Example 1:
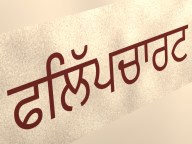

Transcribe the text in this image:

ਫਲਿੱਪਚਾਰਟ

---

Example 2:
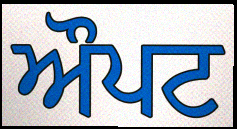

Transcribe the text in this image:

ਔਪਟ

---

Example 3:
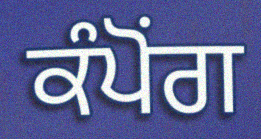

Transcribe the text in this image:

ਕੰਪੋਂਗ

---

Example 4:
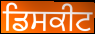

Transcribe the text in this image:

ਡਿਸਕੀਟ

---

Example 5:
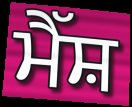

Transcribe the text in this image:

ਮੈੱਸ਼